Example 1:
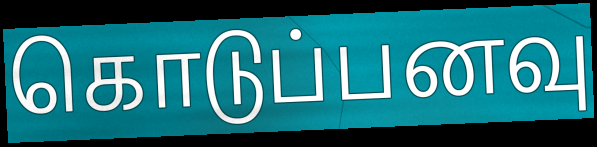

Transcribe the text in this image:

கொடுப்பனவு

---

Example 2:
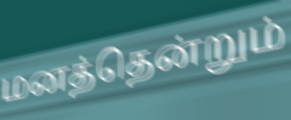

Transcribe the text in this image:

மனத்தென்றும்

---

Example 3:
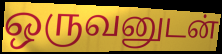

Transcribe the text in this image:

ஒருவனுடன்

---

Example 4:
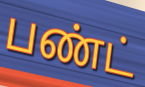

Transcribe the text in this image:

பண்ட்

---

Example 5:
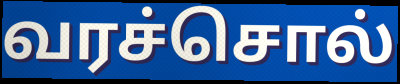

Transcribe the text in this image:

வரச்சொல்